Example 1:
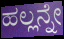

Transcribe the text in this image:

ಹಲ್ಲನ್ನೇ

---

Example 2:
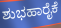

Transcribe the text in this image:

ಶುಭಹಾರೈಕೆ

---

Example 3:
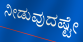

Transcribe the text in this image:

ನೀಡುವುದಷ್ಟೇ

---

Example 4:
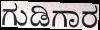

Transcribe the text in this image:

ಗುಡಿಗಾರ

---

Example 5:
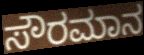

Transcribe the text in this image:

ಸೌರಮಾನ